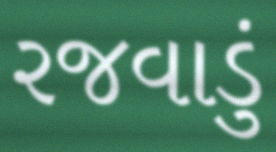
રજવાડું